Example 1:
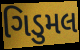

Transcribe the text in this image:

ગિડુમલ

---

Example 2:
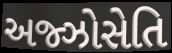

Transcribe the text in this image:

અજ્ઝોસેતિ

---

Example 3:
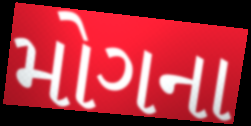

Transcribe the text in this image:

મોગના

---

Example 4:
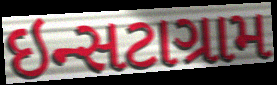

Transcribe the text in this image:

ઇન્સટાગ્રામ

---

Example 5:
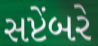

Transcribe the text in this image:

સપ્ટેંબરે